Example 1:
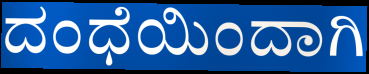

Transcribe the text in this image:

ದಂಧೆಯಿಂದಾಗಿ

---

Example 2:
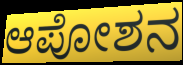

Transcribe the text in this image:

ಆಪೋಶನ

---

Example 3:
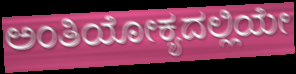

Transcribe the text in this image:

ಅಂತಿಯೋಕ್ಯದಲ್ಲಿಯೇ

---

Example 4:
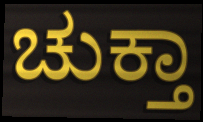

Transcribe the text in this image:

ಚುಕ್ತಾ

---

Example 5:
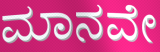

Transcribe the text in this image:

ಮಾನವೇ